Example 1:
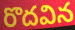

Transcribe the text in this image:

రొదవిన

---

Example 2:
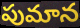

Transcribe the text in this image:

పుమాన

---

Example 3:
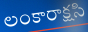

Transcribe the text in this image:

లంకారాక్షసి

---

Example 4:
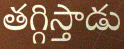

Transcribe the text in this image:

తగ్గిస్తాడు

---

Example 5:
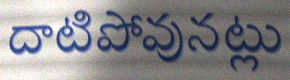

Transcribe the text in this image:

దాటిపోవునట్లు